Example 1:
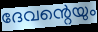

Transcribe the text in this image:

ദേവന്റെയും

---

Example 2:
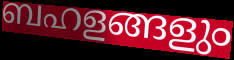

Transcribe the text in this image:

ബഹളങ്ങളും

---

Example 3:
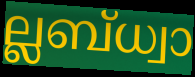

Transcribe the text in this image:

ല്ലബ്ധ്വാ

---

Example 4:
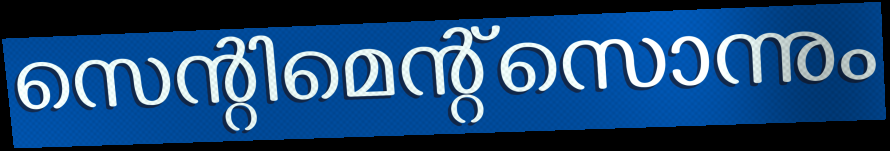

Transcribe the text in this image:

സെന്റിമെന്റ്സൊന്നും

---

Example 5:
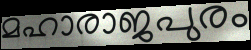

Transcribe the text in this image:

മഹാരാജപുരം